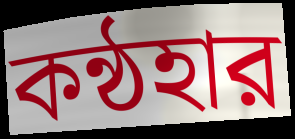
কন্ঠহার